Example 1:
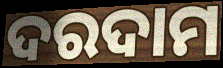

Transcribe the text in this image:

ଦରଦାମ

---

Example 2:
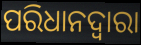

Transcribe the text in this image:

ପରିଧାନଦ୍ୱାରା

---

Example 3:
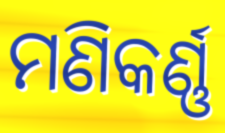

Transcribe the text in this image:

ମଣିକର୍ଣ୍ଣ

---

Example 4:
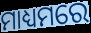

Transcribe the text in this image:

ମାଧ୍ୟମରେ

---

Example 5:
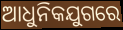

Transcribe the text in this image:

ଆଧୁନିକଯୁଗରେ